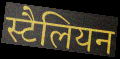
स्टैलियन